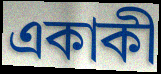
একাকী